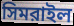
সিমরাইল